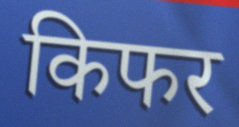
किफर